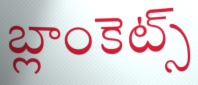
బ్లాంకెట్స్